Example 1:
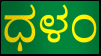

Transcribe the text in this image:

ಧಳಂ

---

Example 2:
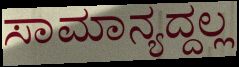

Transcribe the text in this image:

ಸಾಮಾನ್ಯದ್ದಲ್ಲ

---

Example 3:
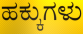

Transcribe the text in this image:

ಹಕ್ಕುಗಳು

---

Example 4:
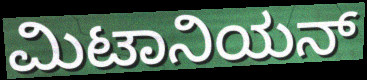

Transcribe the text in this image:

ಮಿಟಾನಿಯನ್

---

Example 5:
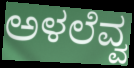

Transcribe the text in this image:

ಅಳಲೆವ್ವ